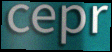
cepr